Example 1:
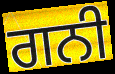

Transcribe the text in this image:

ਗਨੀ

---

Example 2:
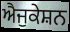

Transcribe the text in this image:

ਐਜੁਕੇਸ਼ਨ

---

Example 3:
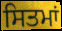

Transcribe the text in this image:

ਸਿਤਮਾਂ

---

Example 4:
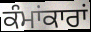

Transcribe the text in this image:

ਕੰਮਾਂਕਾਰਾਂ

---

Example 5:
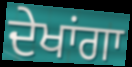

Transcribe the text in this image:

ਦੇਖਾਂਗਾ